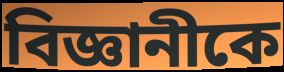
বিজ্ঞানীকে